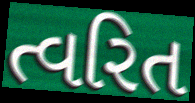
ત્વરિત